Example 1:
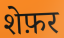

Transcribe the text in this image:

शेफ़र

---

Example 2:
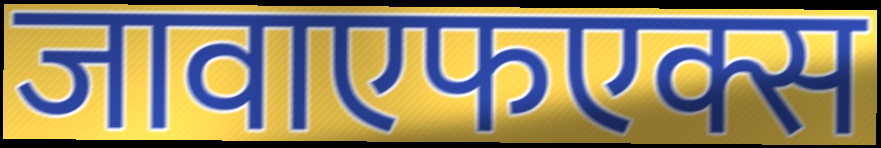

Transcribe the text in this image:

जावाएफएक्स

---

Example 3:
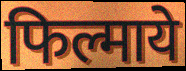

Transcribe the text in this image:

फिल्माये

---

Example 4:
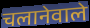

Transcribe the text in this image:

चलानेवाले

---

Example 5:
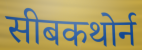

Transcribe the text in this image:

सीबकथोर्न